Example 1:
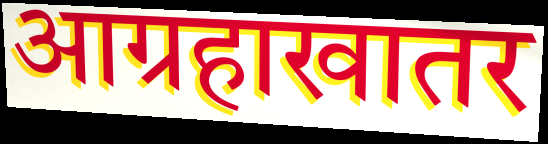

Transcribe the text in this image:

आग्रहाखातर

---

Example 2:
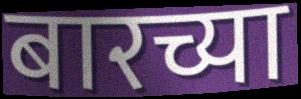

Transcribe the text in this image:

बारच्या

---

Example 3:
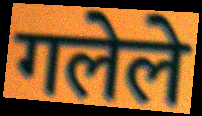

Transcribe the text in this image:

गलेले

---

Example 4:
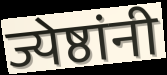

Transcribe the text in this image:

ज्येष्ठांनी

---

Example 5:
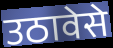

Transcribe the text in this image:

उठावेसे